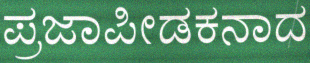
ಪ್ರಜಾಪೀಡಕನಾದ